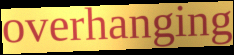
overhanging